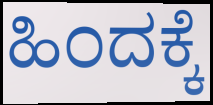
ಹಿಂದಕ್ಕೆ